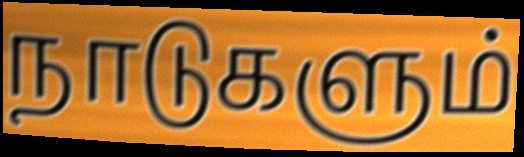
நாடுகளும்